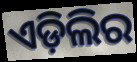
ଏଡ଼ିଲିର